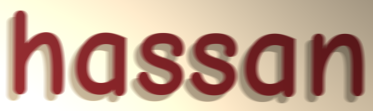
hassan